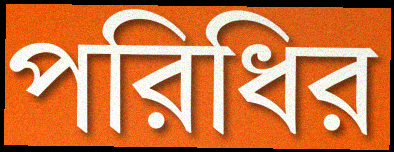
পরিধির